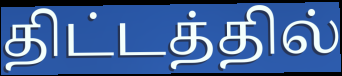
திட்டத்தில்